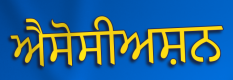
ਐਸੋਸੀਅਸ਼ਨ